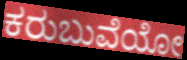
ಕರುಬುವೆಯೋ